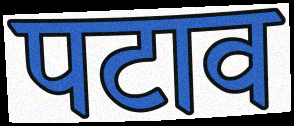
पटाव